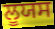
ਲੂਯਸ